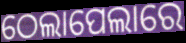
ଠେଲାପେଲାରେ